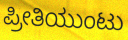
ಪ್ರೀತಿಯುಂಟು